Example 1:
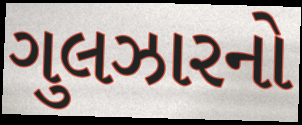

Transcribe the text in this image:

ગુલઝારનો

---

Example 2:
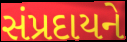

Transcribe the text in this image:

સંપ્રદાયને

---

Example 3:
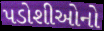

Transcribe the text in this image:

પડોશીઓનો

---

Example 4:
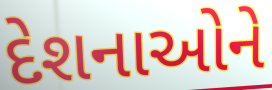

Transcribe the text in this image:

દેશનાઓને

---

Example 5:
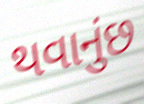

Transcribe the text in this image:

થવાનુંછ